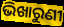
ଭିଖାରୁଣୀ